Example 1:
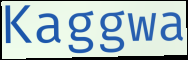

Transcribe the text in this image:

Kaggwa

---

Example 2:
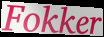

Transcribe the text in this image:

Fokker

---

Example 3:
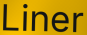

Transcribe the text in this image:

Liner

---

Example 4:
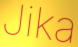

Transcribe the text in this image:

Jika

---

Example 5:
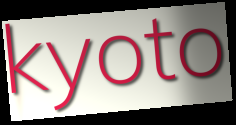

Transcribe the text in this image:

kyoto